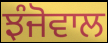
ਝੰਜੋਵਾਲ